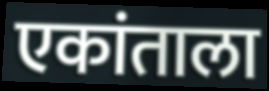
एकांताला